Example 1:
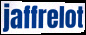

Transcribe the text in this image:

jaffrelot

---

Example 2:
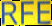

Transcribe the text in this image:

RFE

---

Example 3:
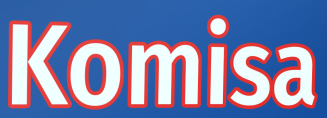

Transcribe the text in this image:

Komisa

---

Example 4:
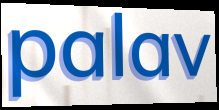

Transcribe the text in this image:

palav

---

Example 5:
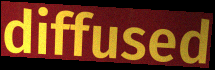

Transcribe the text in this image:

diffused